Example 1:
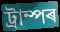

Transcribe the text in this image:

ট্ৰাম্পৰ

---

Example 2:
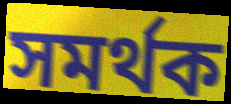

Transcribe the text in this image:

সমৰ্থক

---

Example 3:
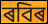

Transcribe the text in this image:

ৰবিৰ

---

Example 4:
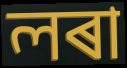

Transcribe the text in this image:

লৰা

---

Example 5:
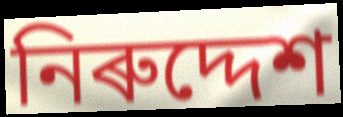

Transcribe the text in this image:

নিৰুদ্দেশ